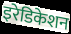
इरेडिकेशन